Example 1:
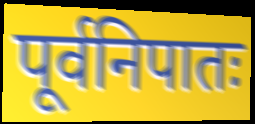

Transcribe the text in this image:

पूर्वनिपातः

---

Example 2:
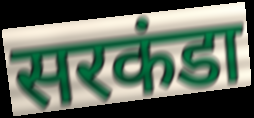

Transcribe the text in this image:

सरकंडा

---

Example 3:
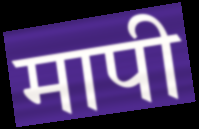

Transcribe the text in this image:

मापी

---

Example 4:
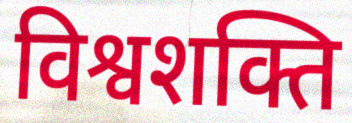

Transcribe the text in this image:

विश्वशक्ति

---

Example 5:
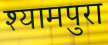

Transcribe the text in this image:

श्यामपुरा